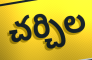
చర్చిల